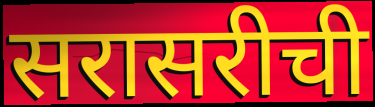
सरासरीची